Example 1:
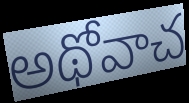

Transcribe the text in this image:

అథోవాచ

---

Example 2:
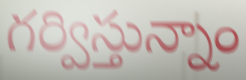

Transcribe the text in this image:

గర్విస్తున్నాం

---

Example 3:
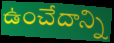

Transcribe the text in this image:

ఉంచేదాన్ని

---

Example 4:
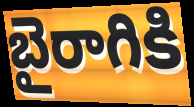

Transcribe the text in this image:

బైరాగికి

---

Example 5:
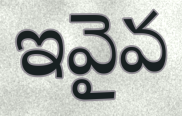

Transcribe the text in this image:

ఇవైవ